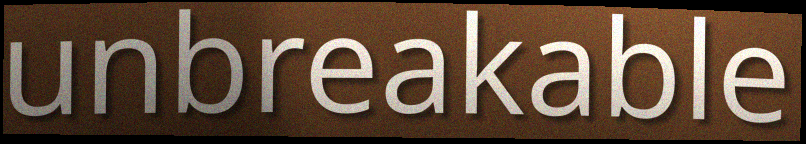
unbreakable